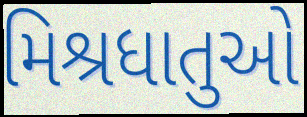
મિશ્રધાતુઓ